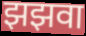
झझवा